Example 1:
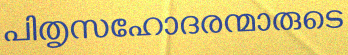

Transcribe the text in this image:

പിതൃസഹോദരന്മാരുടെ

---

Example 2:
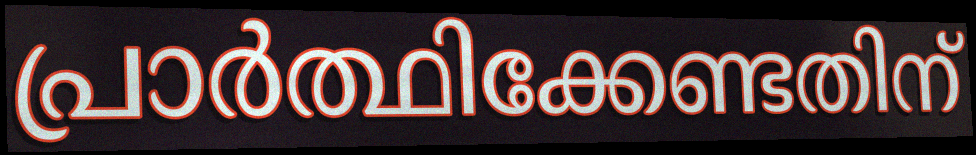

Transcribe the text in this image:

പ്രാർത്ഥിക്കേണ്ടതിന്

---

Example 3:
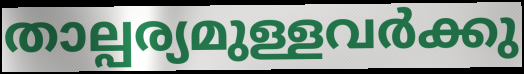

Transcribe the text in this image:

താല്പര്യമുള്ളവർക്കു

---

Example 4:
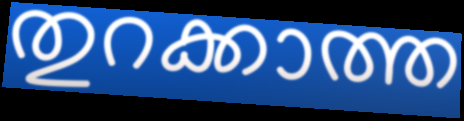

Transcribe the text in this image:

തുറക്കാത്ത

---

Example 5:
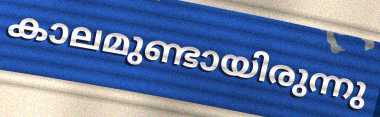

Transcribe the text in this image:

കാലമുണ്ടായിരുന്നു